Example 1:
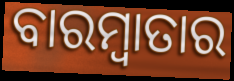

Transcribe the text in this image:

ବାରମ୍ବାତାର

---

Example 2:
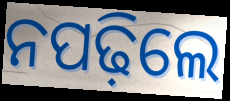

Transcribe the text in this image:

ନପଢ଼ିଲେ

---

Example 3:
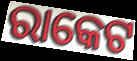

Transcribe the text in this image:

ରାକେଟ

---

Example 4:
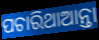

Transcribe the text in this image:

ପଚାରିଥାଆନ୍ତା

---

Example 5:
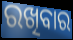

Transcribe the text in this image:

ରଖିବାର